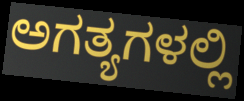
ಅಗತ್ಯಗಳಲ್ಲಿ